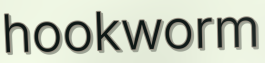
hookworm